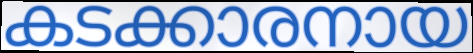
കടക്കാരനായ